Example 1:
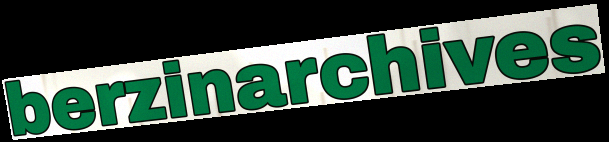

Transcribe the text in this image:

berzinarchives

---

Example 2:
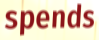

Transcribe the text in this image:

spends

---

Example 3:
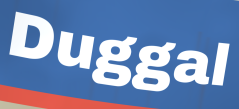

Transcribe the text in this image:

Duggal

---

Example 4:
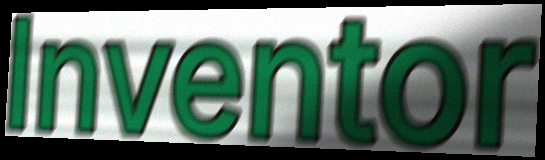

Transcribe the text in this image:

Inventor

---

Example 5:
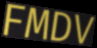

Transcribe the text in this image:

FMDV